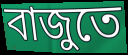
বাজুতে